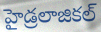
హైడ్రలాజికల్